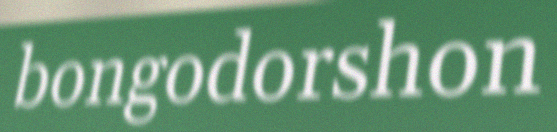
bongodorshon